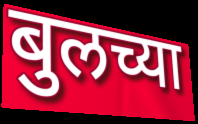
बुलच्या